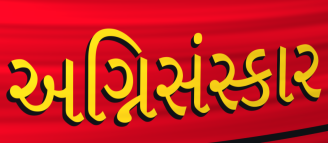
અગ્નિસંસ્કાર